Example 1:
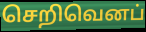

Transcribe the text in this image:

செறிவெனப்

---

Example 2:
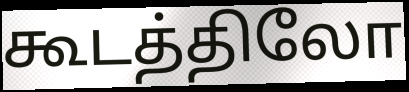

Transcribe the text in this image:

கூடத்திலோ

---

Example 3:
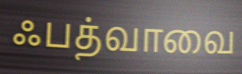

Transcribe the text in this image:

ஃபத்வாவை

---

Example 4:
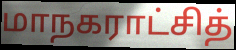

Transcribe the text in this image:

மாநகராட்சித்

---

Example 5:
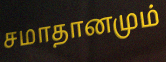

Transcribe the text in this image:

சமாதானமும்